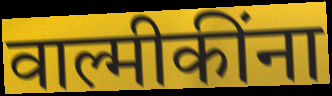
वाल्मीकींना